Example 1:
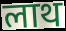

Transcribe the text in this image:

लाथ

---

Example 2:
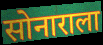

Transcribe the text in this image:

सोनाराला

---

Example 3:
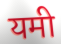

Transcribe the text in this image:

यमी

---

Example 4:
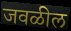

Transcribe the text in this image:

जवळील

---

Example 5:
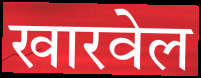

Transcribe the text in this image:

खारवेल